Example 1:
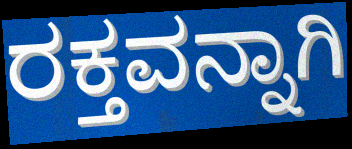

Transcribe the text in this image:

ರಕ್ತವನ್ನಾಗಿ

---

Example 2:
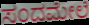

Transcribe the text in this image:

ಸಂದಮೇಲೆ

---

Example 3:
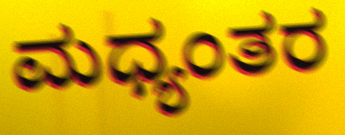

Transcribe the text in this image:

ಮಧ್ಯಂತರ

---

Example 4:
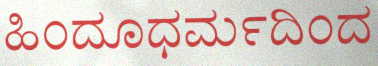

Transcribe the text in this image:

ಹಿಂದೂಧರ್ಮದಿಂದ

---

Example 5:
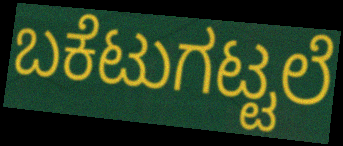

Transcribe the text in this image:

ಬಕೆಟುಗಟ್ಟಲೆ